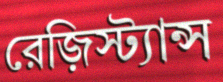
রেজ়িস্ট্যান্স